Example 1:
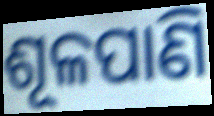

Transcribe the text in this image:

ଶୂଳପାଣି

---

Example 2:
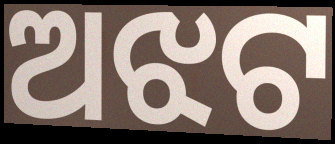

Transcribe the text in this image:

ଅଝଟ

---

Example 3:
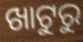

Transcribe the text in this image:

ଖାଟୁରୁ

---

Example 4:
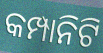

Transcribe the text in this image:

କମ୍ପାନିଟି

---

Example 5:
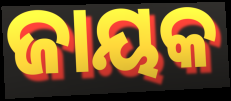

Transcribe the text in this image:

ଜାୟକ